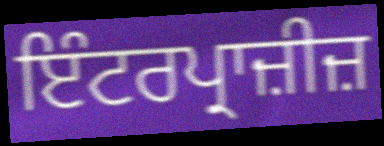
ਇੰਟਰਪ੍ਰਾਜ਼ੀਜ਼